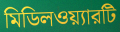
মিডিলওয়্যারটি